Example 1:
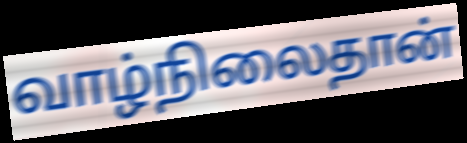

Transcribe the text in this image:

வாழ்நிலைதான்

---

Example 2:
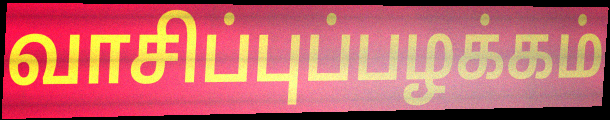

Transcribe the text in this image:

வாசிப்புப்பழக்கம்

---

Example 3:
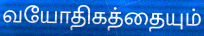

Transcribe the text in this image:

வயோதிகத்தையும்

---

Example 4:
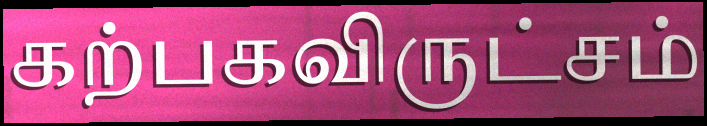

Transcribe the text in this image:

கற்பகவிருட்சம்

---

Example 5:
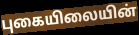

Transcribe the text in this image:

புகையிலையின்